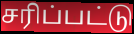
சரிப்பட்டு